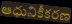
ఆధునికీకరణ